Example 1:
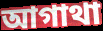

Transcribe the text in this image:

আগাথা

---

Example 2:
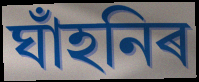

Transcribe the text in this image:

ঘাঁহনিৰ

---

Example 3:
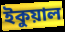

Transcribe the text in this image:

ইকুয়াল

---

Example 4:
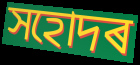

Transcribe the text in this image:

সহোদৰ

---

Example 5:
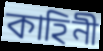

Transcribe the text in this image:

কাহিনী